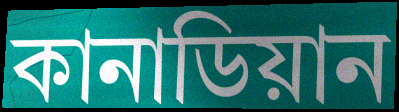
কানাডিয়ান